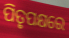
ପିତୃପକ୍ଷରେ